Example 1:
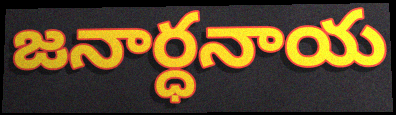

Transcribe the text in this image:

జనార్ధనాయ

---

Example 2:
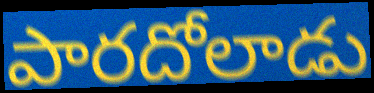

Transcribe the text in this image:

పారదోలాడు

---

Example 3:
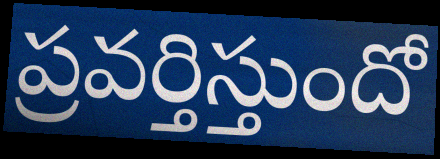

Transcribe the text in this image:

ప్రవర్తిస్తుందో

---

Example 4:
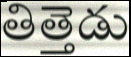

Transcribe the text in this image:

తిత్తెడు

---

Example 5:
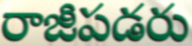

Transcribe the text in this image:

రాజీపడరు